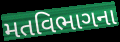
મતવિભાગના